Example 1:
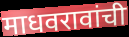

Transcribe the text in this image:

माधवरावांची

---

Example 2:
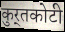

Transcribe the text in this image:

कुर्तकोटी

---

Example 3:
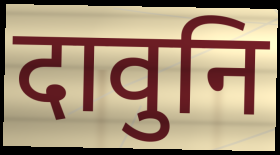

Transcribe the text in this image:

दावुनि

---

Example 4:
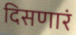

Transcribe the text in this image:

दिसणारं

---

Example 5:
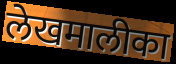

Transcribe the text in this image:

लेखमालीका